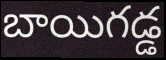
బాయిగడ్డ